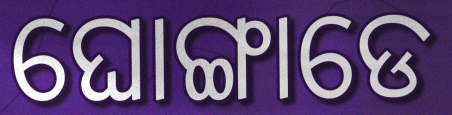
ଘୋଙ୍ଗାଡେ